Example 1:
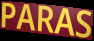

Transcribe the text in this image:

PARAS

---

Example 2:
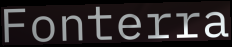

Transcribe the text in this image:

Fonterra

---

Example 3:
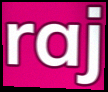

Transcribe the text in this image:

raj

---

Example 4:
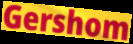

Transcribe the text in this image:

Gershom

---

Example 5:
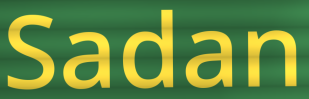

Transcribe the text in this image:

Sadan